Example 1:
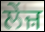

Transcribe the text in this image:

ਲੇਂਜ਼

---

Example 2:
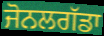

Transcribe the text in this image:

ਜੋਨਲਗੱਡਾ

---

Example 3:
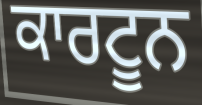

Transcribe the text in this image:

ਕਾਰਟੂਨ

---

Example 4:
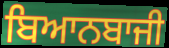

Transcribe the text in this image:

ਬਿਆਨਬਾਜੀ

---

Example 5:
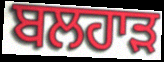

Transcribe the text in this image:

ਬਲਹਾੜ